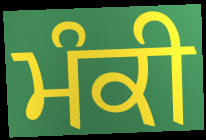
ਮੰਕੀ